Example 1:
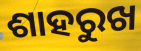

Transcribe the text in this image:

ଶାହରୁଖ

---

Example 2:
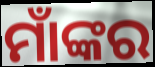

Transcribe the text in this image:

ମାଁଙ୍କର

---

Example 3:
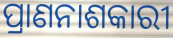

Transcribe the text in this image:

ପ୍ରାଣନାଶକାରୀ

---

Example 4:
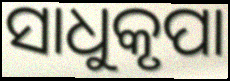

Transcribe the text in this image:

ସାଧୁକୃପା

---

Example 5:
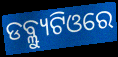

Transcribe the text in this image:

ଡବ୍ଲ୍ୟୁଟିଓରେ